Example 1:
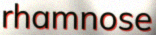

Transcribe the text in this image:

rhamnose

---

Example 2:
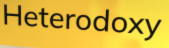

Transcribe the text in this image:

Heterodoxy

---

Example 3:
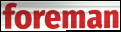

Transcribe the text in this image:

foreman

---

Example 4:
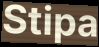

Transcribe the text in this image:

Stipa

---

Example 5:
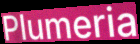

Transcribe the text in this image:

Plumeria